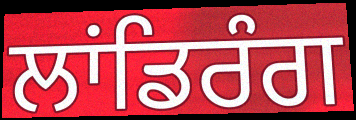
ਲਾਂਡਿਰੰਗ